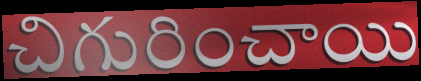
చిగురించాయి